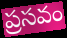
ప్రసవం